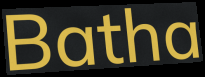
Batha